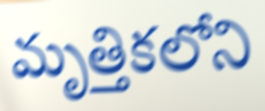
మృత్తికలోని